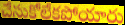
చేసుకోలేకపోయారు